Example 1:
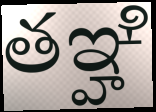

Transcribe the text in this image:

తఞ్హి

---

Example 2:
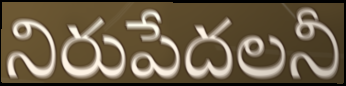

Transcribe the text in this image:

నిరుపేదలనీ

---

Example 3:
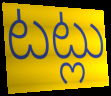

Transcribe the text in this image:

టట్లు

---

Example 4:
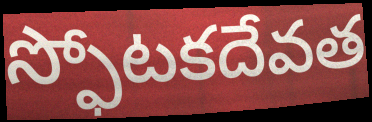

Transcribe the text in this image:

స్ఫోటకదేవత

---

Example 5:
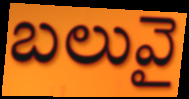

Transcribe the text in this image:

బలువై